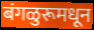
बंगळुरूमधून